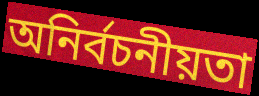
অনির্বচনীয়তা